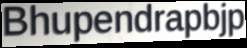
Bhupendrapbjp